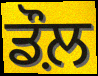
ਡੌਲ਼